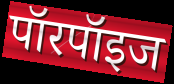
पॉरपॉइज